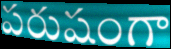
పరుషంగా